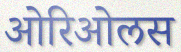
ओरिओलस